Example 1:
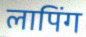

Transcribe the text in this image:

लापिंग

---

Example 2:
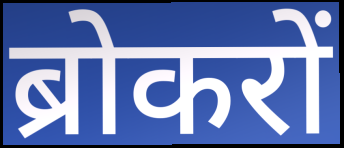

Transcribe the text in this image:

ब्रोकरों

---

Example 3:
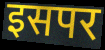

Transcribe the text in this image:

इसपर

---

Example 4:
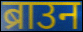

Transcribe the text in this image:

ब्राउन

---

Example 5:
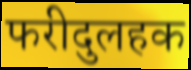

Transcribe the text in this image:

फरीदुलहक